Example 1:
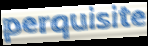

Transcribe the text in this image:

perquisite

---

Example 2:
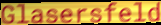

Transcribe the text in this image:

Glasersfeld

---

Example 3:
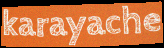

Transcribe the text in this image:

karayache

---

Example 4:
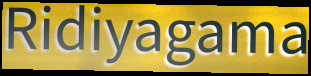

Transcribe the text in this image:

Ridiyagama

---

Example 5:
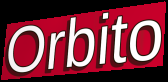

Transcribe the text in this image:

Orbito